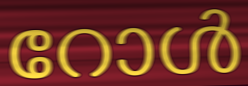
റോൾ